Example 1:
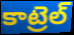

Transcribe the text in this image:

కాట్రెల్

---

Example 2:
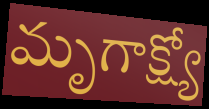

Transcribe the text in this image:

మృగాక్ష్యో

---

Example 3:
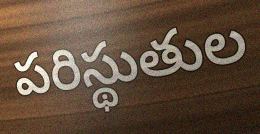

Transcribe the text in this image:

పరిస్థుతుల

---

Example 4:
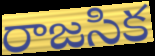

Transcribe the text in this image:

రాజసిక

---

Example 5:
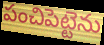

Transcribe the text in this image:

పంచిపెట్టెను